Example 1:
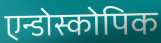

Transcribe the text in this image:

एन्डोस्कोपिक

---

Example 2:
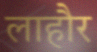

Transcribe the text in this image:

लाहौर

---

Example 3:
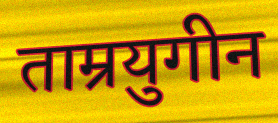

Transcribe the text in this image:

ताम्रयुगीन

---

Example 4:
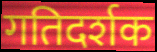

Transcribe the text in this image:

गतिदर्शक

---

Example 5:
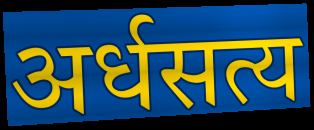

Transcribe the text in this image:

अर्धसत्य